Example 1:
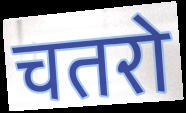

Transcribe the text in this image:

चतरो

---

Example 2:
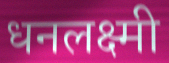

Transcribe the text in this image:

धनलक्ष्मी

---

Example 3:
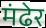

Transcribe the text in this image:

मंढेर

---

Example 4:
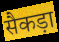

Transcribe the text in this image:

सैकड़ा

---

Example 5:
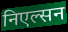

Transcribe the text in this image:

निएल्सन